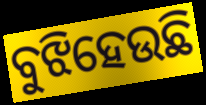
ବୁଝିହେଉଛି